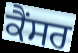
ਕੈਂਸਰ